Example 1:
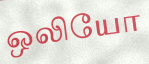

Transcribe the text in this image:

ஒலியோ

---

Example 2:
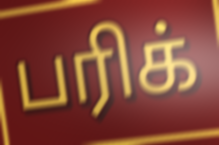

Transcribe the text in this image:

பரிக்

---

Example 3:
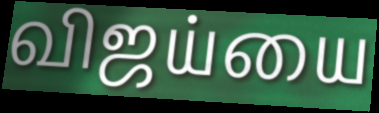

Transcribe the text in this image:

விஜய்யை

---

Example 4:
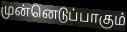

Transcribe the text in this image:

முன்னெடுப்பாகும்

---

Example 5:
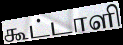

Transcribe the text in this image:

கூட்டாளி